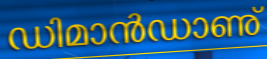
ഡിമാൻഡാണു്